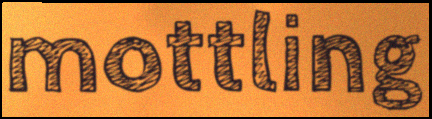
mottling